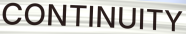
CONTINUITY